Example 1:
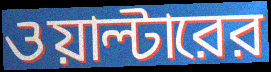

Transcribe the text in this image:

ওয়াল্টারের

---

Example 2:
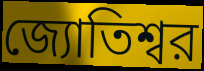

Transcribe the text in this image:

জ্যোতিশ্বর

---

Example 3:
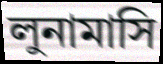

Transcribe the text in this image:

লুনামাসি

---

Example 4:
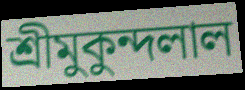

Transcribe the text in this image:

শ্রীমুকুন্দলাল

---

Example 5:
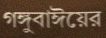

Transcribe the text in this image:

গঙ্গুবাঈয়ের